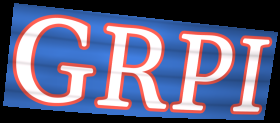
GRPI